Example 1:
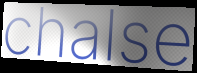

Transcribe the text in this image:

chalse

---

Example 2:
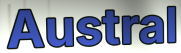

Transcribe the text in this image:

Austral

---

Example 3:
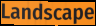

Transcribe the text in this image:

Landscape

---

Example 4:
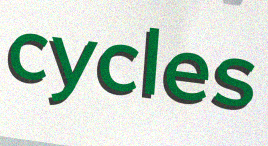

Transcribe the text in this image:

cycles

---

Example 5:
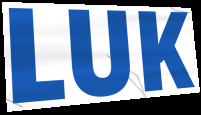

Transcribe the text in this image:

LUK